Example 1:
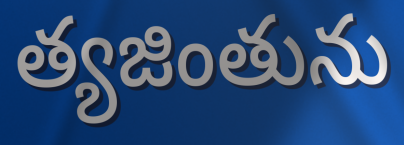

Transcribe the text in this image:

త్యజింతును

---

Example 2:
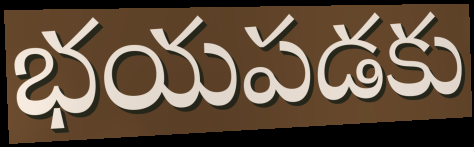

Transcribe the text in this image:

భయపడకు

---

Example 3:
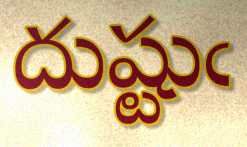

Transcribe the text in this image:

దుష్టుఁ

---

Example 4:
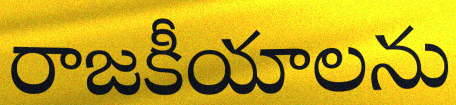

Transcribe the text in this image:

రాజకీయాలను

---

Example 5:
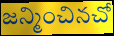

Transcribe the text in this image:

జన్మించినచో